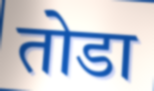
तोडा